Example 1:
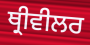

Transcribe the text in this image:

ਥ੍ਰੀਵੀਲਰ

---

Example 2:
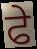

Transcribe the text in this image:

ਫੇ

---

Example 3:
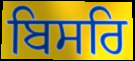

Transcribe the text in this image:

ਬਿਸਰਿ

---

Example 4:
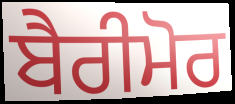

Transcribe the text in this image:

ਬੈਰੀਮੋਰ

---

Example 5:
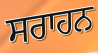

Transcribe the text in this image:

ਸਰਾਹਨ